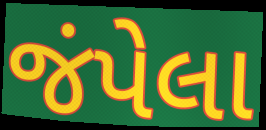
જંપેલા